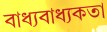
বাধ্যবাধ্যকতা